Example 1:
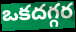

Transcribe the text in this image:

ఒకదగ్గర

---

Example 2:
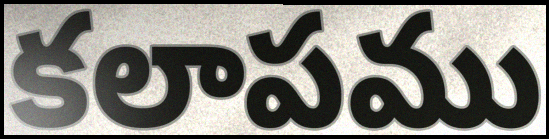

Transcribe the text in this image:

కలాపము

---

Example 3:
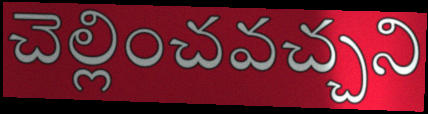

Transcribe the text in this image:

చెల్లించవచ్చని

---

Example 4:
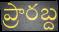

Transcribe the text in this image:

ప్రారబ్ద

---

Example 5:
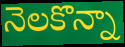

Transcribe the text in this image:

నెలకొన్నా